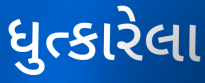
ધુત્કારેલા